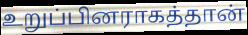
உறுப்பினராகத்தான்